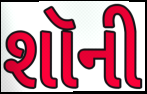
શૉની